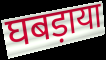
घबड़ाया